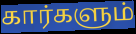
கார்களும்